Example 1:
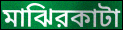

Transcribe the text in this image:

মাঝিরকাটা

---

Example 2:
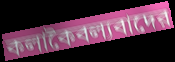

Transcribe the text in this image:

কলাকৈবল্যবাদের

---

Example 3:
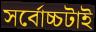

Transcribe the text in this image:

সর্বোচ্চটাই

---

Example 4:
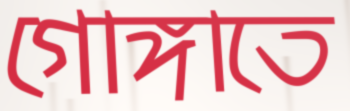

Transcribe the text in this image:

গোঙ্গাতে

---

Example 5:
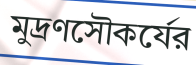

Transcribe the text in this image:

মুদ্রণসৌকর্যের